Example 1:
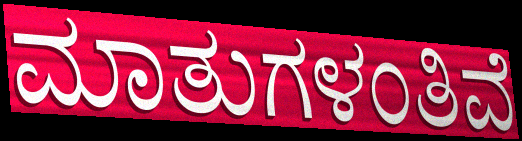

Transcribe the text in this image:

ಮಾತುಗಳಂತಿವೆ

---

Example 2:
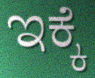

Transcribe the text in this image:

ಇಕ್ಕೆ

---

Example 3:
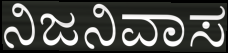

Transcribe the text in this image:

ನಿಜನಿವಾಸ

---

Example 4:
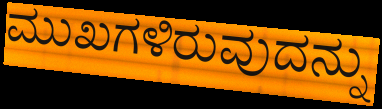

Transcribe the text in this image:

ಮುಖಗಳಿರುವುದನ್ನು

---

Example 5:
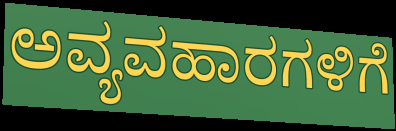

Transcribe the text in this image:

ಅವ್ಯವಹಾರಗಳಿಗೆ